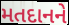
મતદાનને